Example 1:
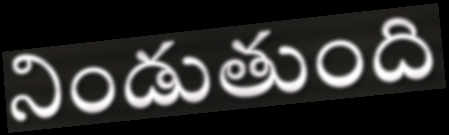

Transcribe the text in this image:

నిండుతుంది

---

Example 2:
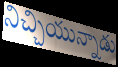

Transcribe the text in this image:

నిచ్చియున్నాడు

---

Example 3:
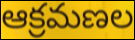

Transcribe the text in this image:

ఆక్రమణల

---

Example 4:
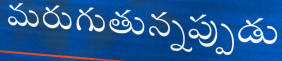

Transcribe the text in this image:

మరుగుతున్నప్పుడు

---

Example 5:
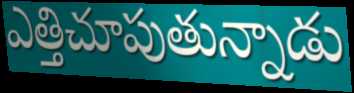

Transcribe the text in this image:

ఎత్తిచూపుతున్నాడు